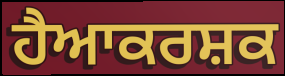
ਹੈਆਕਰਸ਼ਕ